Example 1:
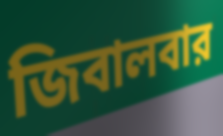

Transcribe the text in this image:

জিবালবার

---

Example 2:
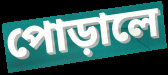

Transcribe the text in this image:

পোড়ালে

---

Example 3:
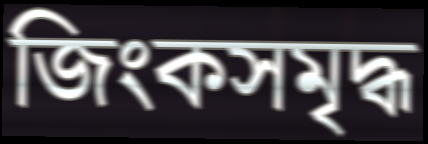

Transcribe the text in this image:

জিংকসমৃদ্ধ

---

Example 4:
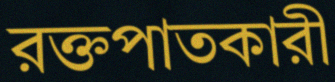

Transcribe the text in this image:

রক্তপাতকারী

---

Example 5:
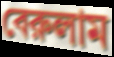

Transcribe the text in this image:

বেরুলাম